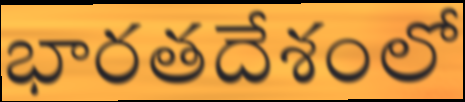
భారతదేశంలో